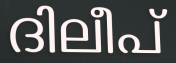
ദിലീപ്